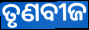
ତୃଣବୀଜ